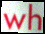
wh